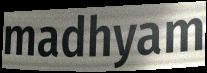
madhyam